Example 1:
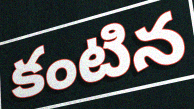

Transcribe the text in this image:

కంటిన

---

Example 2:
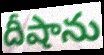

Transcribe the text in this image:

దీషాను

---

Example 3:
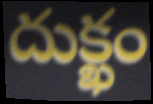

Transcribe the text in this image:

దుక్ఖం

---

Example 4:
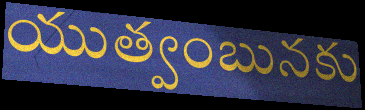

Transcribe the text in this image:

యుత్వంబునకు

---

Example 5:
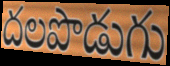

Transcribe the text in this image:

దలపొడుగు